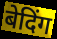
बेदिंग